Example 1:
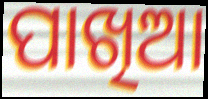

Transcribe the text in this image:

ପାଖିଆ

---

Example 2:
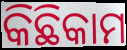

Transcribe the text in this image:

କିଛିକାମ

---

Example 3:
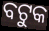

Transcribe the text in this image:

ବଟୁକ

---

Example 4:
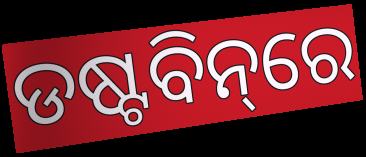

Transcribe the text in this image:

ଡଷ୍ଟବିନ୍‌ରେ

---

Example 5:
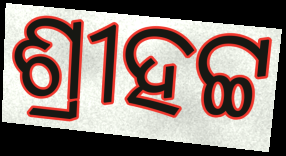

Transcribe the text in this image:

ଶ୍ରୀହଟ୍ଟ